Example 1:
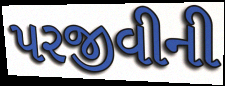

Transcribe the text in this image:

પરજીવીની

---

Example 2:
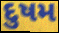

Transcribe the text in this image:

દુષમ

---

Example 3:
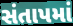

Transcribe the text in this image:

સંતાપમાં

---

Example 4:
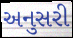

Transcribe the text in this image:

અનુસરી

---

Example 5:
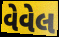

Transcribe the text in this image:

વેવેલ